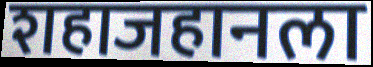
शहाजहानला